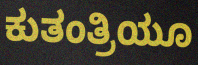
ಕುತಂತ್ರಿಯೂ